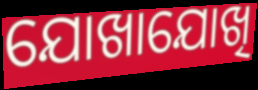
ଯୋଖାଯୋଖି